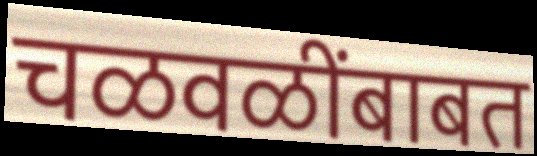
चळवळींबाबत